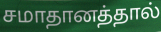
சமாதானத்தால்